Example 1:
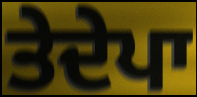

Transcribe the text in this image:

ਤੇਦੇਪਾ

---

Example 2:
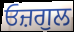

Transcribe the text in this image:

ਓਜ਼ਗੁਲ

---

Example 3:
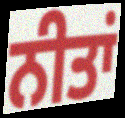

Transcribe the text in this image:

ਨੀਤਾਂ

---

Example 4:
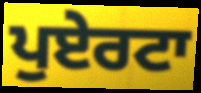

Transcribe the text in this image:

ਪੁਏਰਟਾ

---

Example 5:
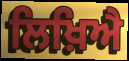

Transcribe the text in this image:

ਲਿਖ਼ਿਐ